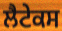
ਲੈਟੇਕਸ